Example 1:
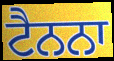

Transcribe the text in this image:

ਟੈਨਨਾ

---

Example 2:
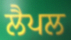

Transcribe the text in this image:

ਲੈਪਲ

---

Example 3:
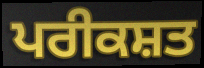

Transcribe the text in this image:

ਪਰੀਕਸ਼ਤ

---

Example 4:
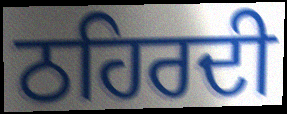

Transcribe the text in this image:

ਠਹਿਰਦੀ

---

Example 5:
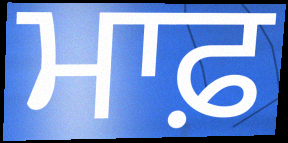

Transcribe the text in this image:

ਮਾਫ਼